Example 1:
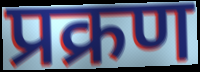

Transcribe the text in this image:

प्रक्रण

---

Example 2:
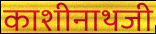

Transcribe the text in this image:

काशीनाथजी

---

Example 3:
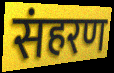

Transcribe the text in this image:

संहरण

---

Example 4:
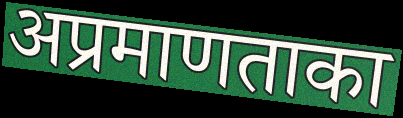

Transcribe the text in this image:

अप्रमाणताका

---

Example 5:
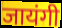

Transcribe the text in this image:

जायंगी